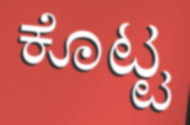
ಕೊಟ್ಟ